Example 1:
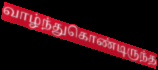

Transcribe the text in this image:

வாழ்ந்துகொண்டிருந்த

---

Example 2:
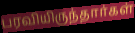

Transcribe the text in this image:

பரவியிருந்தார்கள்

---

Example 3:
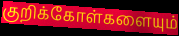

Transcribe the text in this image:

குறிக்கோள்களையும்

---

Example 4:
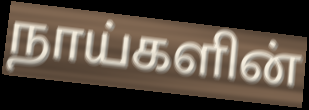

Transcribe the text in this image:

நாய்களின்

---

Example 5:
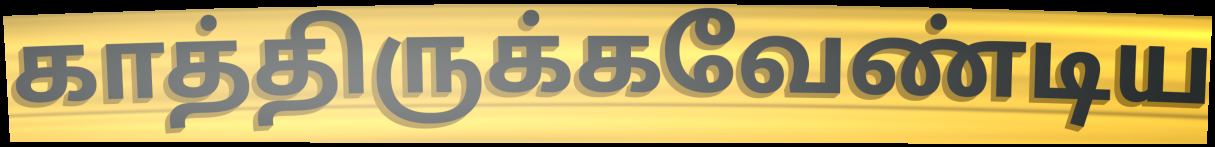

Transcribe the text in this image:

காத்திருக்கவேண்டிய